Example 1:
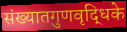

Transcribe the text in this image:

संख्यातगुणवृद्धिके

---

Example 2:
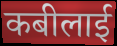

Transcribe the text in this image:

कबीलाई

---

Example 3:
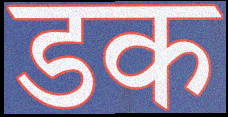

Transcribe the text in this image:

डक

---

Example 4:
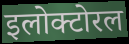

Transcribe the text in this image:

इलोक्टोरल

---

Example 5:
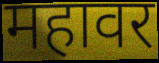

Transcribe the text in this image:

महावर